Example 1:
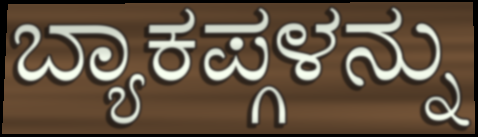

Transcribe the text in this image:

ಬ್ಯಾಕಪ್ಗಳನ್ನು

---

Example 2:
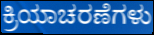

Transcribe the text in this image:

ಕ್ರಿಯಾಚರಣೆಗಳು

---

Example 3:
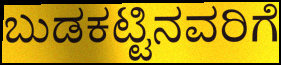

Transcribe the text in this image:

ಬುಡಕಟ್ಟಿನವರಿಗೆ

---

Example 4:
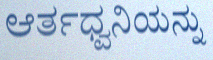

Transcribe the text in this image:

ಆರ್ತಧ್ವನಿಯನ್ನು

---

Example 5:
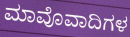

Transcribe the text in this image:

ಮಾವೊವಾದಿಗಳ